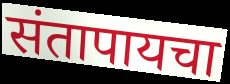
संतापायचा